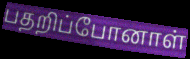
பதறிப்போனாள்